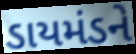
ડાયમંડને